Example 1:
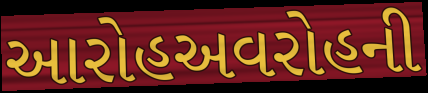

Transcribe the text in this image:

આરોહઅવરોહની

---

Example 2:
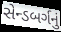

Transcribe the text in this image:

સેન્ડબર્ગનું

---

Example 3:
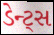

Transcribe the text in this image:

ડેન્ટ્સ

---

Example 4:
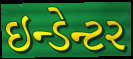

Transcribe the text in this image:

ઇન્ડેન્ટર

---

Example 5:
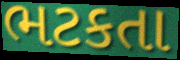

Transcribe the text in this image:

ભટકતા